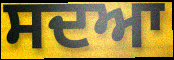
ਸਦਆ